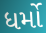
ધર્મો